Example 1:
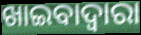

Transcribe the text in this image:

ଖାଇବାଦ୍ଵାରା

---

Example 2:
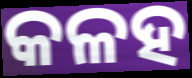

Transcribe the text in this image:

କଳହ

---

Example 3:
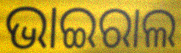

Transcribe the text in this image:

ଭାଇରାଲ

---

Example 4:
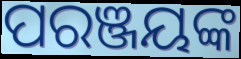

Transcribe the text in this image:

ପରଞ୍ଜୟଙ୍କ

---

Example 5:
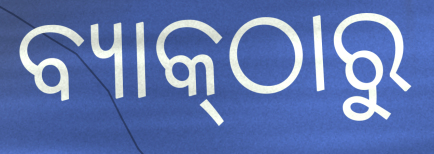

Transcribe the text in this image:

ବ୍ୟାକ୍‌ଠାରୁ